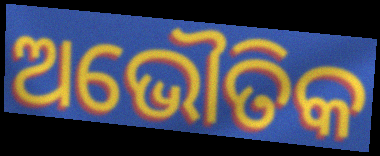
ଅଭୌତିକ